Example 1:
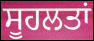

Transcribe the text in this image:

ਸੂਹਲਤਾਂ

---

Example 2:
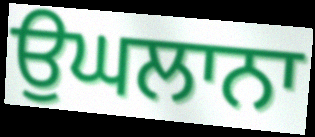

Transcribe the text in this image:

ਉਘਲਾਨਾ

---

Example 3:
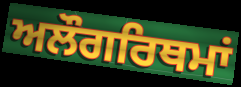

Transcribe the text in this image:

ਅਲੌਗਰਿਥਮਾਂ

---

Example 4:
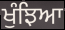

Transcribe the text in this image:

ਖੁੰਝਿਆ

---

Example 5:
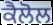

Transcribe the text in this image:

ਕੈਲੋਲ